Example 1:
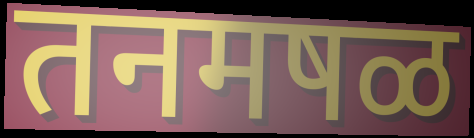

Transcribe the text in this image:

तनमषळ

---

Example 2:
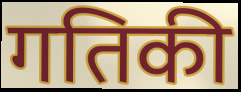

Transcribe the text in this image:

गतिकी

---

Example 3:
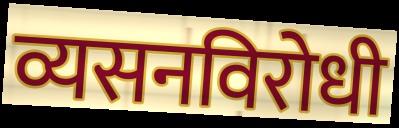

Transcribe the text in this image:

व्यसनविरोधी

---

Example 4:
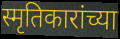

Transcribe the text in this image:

स्मृतिकारांच्या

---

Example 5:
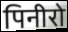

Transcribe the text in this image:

पिनीरो